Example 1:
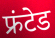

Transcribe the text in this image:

फ्रंटेड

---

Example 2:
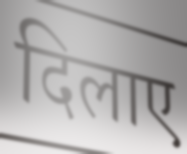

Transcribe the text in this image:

दिलाए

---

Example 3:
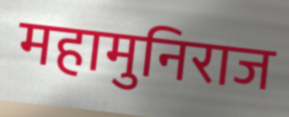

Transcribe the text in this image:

महामुनिराज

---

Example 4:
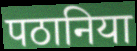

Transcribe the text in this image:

पठानिया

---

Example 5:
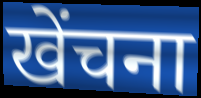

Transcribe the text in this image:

खेंचना